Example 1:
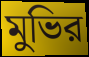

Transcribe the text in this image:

মুভির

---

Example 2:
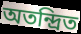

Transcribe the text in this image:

অতন্দ্রিত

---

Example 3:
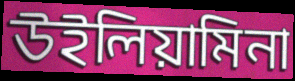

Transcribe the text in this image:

উইলিয়ামিনা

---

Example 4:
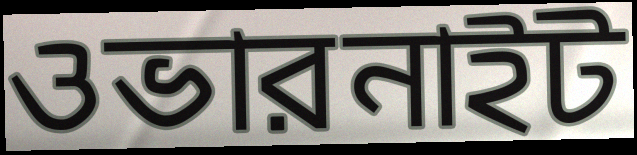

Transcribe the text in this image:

ওভারনাইট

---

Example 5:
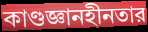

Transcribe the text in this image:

কাণ্ডজ্ঞানহীনতার